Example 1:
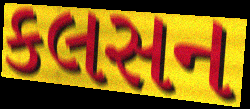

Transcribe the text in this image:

કલસન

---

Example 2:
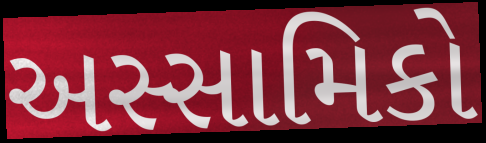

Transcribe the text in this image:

અસ્સામિકો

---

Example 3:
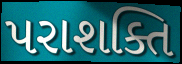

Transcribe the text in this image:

પરાશક્તિ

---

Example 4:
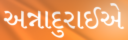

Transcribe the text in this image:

અન્નાદુરાઈએ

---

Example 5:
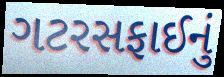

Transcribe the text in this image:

ગટરસફાઈનું